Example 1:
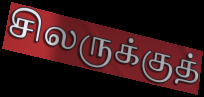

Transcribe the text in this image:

சிலருக்குத்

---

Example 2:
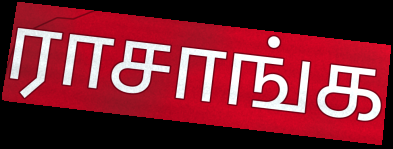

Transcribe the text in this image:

ராசாங்க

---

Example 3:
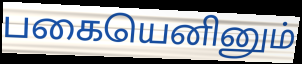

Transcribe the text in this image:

பகையெனினும்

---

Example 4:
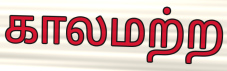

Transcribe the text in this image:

காலமற்ற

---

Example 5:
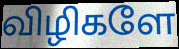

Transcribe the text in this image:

விழிகளே